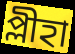
প্লীহা